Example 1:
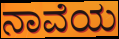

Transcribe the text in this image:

ನಾವೆಯ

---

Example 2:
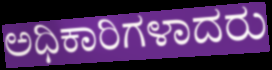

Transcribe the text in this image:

ಅಧಿಕಾರಿಗಳಾದರು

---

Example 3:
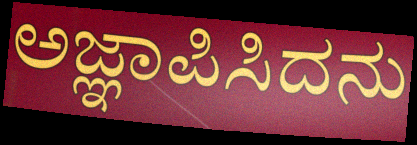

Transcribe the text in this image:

ಅಜ್ಞಾಪಿಸಿದನು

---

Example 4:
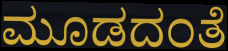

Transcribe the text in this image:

ಮೂಡದಂತೆ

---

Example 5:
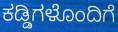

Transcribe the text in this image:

ಕಡ್ಡಿಗಳೊಂದಿಗೆ